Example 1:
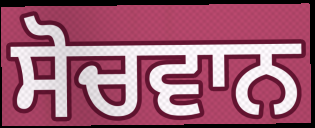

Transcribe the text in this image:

ਸੋਚਵਾਨ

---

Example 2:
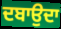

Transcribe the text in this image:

ਦਬਾਉਦਾ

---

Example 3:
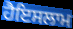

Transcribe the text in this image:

ਹੈਇਸਲਾਮ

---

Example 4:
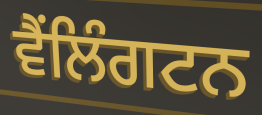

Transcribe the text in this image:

ਵੈਂਲਿੰਗਟਨ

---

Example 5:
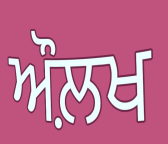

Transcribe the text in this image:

ਔਲ਼ਖ